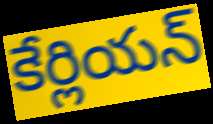
కేర్లియన్